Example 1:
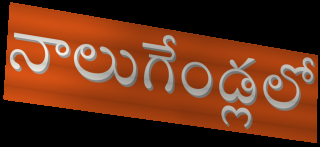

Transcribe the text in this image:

నాలుగేండ్లలో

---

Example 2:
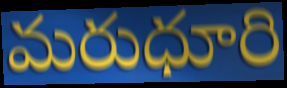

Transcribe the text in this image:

మరుధూరి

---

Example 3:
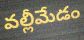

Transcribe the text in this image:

వల్లీమేడం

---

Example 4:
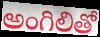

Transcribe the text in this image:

అంగిలితో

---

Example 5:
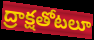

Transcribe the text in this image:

ద్రాక్షతోటలూ